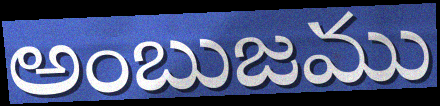
అంబుజము